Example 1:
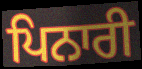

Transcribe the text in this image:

ਪਿਨਾਰੀ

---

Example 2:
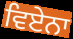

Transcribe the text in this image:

ਵਿਏਨਾ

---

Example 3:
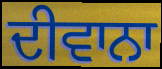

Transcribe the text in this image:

ਦੀਵਾਨਾ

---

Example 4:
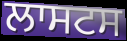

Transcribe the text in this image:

ਲਾਸਟਸ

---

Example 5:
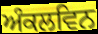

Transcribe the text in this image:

ਅੰਕਲਵਿਨ